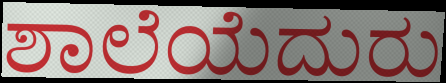
ಶಾಲೆಯೆದುರು